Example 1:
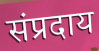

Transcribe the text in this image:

संप्रदाय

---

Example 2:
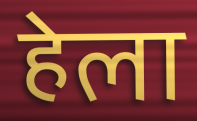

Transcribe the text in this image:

हेला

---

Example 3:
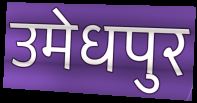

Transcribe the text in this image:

उमेधपुर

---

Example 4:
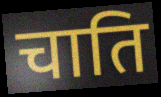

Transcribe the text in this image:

चाति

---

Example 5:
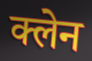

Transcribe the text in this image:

क्लेन